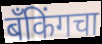
बँकिंगचा